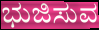
ಭುಜಿಸುವ